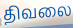
திவலை